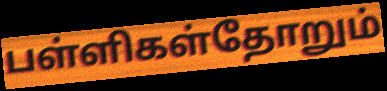
பள்ளிகள்தோறும்